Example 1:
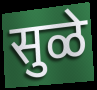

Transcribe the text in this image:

सुळे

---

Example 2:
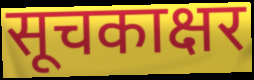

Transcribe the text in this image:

सूचकाक्षर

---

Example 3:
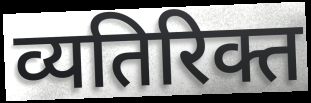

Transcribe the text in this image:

व्यतिरिक्त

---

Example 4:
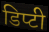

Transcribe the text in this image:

डिप्टी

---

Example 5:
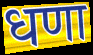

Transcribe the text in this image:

धणा